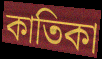
কাতিকা